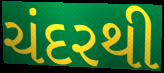
ચંદરથી